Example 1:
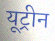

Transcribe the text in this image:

यूट्रीन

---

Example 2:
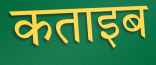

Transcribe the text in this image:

कताइब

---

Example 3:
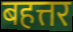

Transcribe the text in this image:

बहत्तर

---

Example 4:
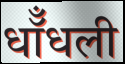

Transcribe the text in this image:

धॉँधली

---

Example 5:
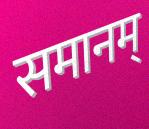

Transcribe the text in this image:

समानम्